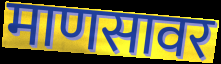
माणसावर